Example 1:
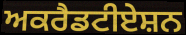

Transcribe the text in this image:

ਅਕਰੈਡਟੀਏਸ਼ਨ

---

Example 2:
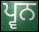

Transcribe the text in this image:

ਪ੍ਵਨ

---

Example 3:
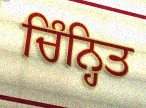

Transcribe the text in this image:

ਚਿੰਨ੍ਹਿਤ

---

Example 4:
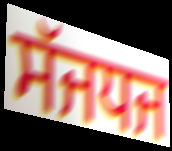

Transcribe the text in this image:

ਸੱਜਧਜ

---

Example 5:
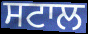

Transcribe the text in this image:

ਸਟਾਲ